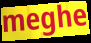
meghe